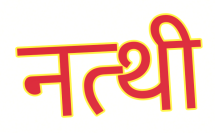
नत्‍थी